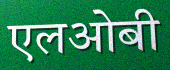
एलओबी